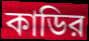
কাডির